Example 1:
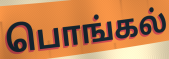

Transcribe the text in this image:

பொங்கல்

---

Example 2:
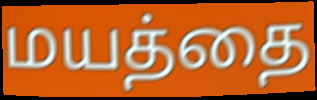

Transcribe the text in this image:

மயத்தை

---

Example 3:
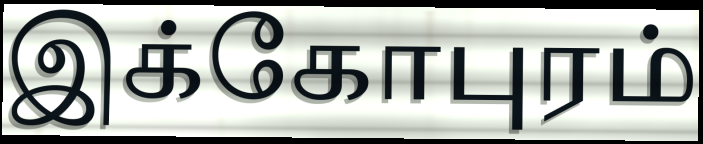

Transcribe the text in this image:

இக்கோபுரம்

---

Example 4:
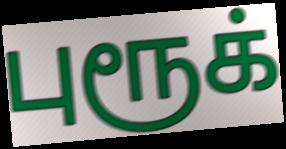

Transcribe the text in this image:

புரூக்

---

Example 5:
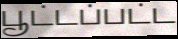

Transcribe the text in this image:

பூட்டப்பட்ட